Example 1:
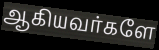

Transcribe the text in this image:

ஆகியவர்களே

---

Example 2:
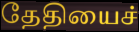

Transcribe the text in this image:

தேதியைச்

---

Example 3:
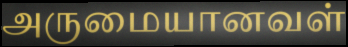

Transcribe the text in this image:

அருமையானவள்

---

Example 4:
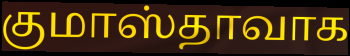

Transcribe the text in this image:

குமாஸ்தாவாக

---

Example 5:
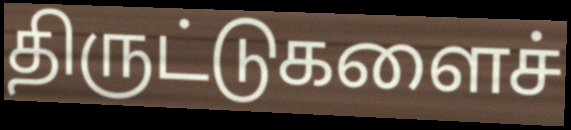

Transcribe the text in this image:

திருட்டுகளைச்